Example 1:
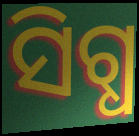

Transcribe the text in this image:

ସିଗ୍ଧ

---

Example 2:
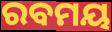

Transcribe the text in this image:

ରବମୟ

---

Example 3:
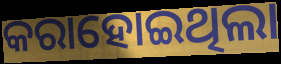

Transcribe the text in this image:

କରାହୋଇଥିଲା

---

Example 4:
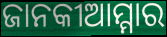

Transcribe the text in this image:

ଜାନକୀଆମ୍ମାର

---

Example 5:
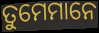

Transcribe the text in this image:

ତୁମେମାନେ